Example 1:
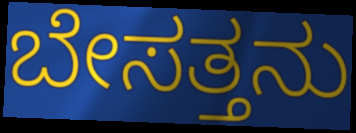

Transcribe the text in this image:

ಬೇಸತ್ತನು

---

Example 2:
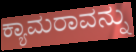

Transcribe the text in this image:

ಕ್ಯಾಮರಾವನ್ನು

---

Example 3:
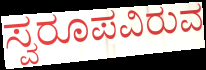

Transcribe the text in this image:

ಸ್ವರೂಪವಿರುವ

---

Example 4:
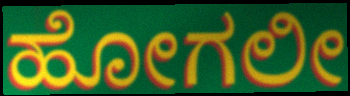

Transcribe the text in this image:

ಹೋಗಲೀ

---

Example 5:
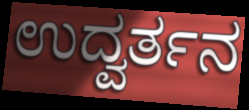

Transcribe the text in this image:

ಉದ್ವರ್ತನ